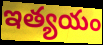
ఇత్యయం